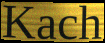
Kach